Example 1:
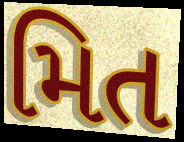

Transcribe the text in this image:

મિત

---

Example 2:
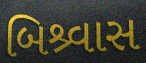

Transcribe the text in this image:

બિશ્ર્વાસ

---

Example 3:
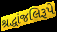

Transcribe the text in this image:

શ્રદ્ધાંજલિરૂપે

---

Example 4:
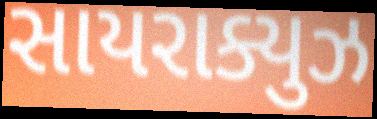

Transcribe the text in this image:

સાયરાક્યુઝ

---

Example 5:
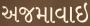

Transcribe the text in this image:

અજમાવાઇ